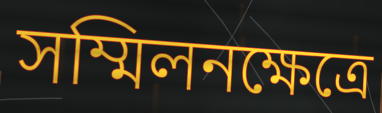
সম্মিলনক্ষেত্রে